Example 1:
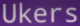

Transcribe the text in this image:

Ukers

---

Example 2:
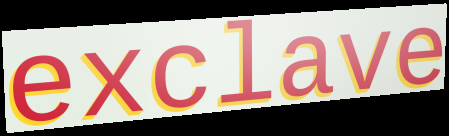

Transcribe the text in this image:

exclave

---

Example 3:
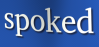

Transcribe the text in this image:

spoked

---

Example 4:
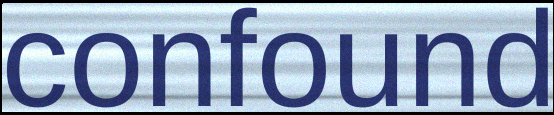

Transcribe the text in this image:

confound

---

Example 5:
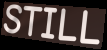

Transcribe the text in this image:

STILL